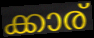
ക്കാര്